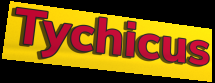
Tychicus